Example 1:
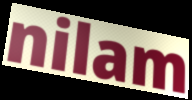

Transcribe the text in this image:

nilam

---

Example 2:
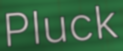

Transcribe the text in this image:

Pluck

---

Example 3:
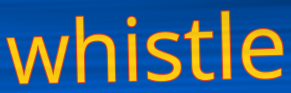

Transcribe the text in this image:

whistle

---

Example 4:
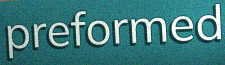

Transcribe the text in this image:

preformed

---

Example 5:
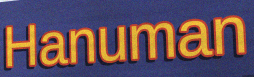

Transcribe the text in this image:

Hanuman